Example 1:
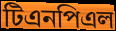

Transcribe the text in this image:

টিএনপিএল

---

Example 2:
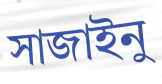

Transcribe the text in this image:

সাজাইনু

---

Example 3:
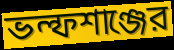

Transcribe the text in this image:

ভল্ফশাঞ্জের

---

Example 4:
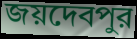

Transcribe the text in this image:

জয়দেবপুর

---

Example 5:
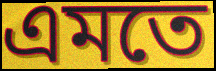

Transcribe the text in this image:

এমতে